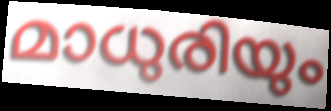
മാധുരിയും